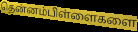
தென்னம்பிள்ளைகளை